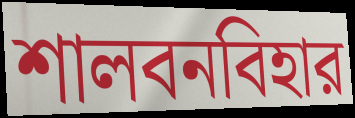
শালবনবিহার